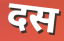
दस